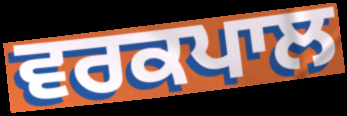
ਵਰਕਪਾਲ